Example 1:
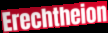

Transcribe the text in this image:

Erechtheion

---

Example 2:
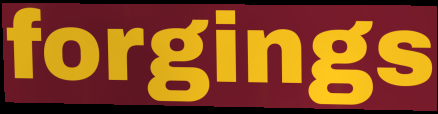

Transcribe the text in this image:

forgings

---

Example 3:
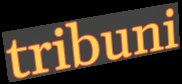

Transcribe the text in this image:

tribuni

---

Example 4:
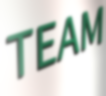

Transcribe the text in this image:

TEAM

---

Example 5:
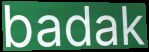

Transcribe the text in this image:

badak